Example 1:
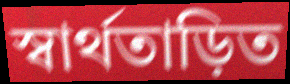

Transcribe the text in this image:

স্বার্থতাড়িত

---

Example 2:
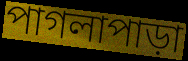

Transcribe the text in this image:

পাগলাপাড়া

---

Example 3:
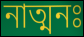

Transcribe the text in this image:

নাত্মনঃ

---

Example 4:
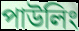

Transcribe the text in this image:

পাউলিং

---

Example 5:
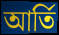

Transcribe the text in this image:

আর্তি